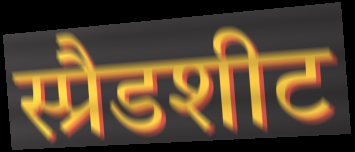
स्प्रैडशीट